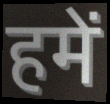
हमें